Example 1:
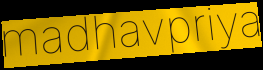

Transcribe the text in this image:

madhavpriya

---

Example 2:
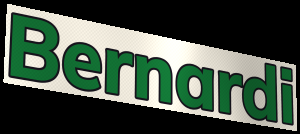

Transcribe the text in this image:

Bernardi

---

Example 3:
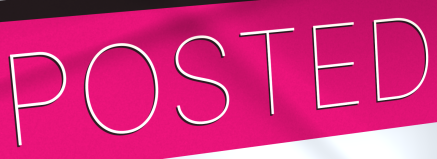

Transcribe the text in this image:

POSTED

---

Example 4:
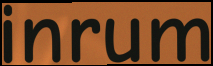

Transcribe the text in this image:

inrum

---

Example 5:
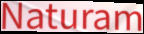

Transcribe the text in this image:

Naturam